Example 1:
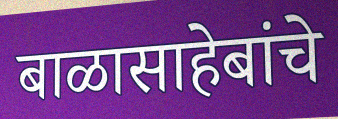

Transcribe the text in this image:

बाळासाहेबांचे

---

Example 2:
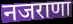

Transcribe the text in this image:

नजराणा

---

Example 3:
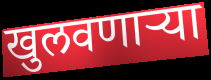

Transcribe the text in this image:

खुलवणाऱ्या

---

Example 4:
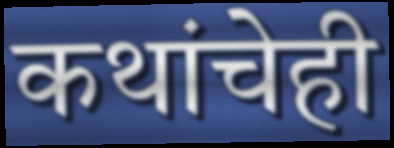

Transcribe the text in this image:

कथांचेही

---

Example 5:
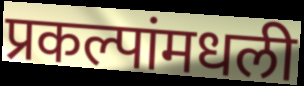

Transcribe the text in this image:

प्रकल्पांमधली